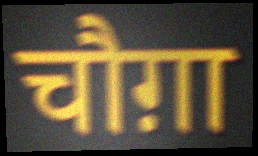
चौग़ा